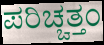
ಪರಿಚ್ಚತ್ತಂ